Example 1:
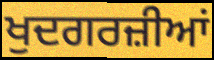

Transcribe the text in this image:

ਖੁਦਗਰਜ਼ੀਆਂ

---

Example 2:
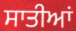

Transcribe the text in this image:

ਸਾਤੀਆਂ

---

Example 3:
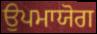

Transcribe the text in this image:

ਉਪਮਾਯੋਗ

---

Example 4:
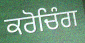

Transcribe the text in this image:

ਕਰੋਚਿੰਗ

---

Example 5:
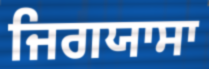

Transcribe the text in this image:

ਜਿਗਯਾਸਾ